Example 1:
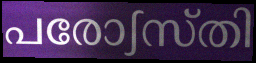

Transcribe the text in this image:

പരോഽസ്തി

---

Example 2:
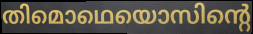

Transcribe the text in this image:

തിമൊഥെയൊസിന്റെ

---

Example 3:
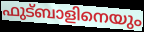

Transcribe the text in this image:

ഫുട്ബാളിനെയും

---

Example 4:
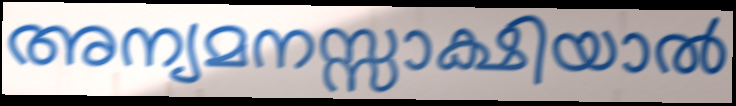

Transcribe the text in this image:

അന്യമനസ്സാക്ഷിയാൽ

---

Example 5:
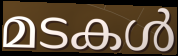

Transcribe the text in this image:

മടകൾ